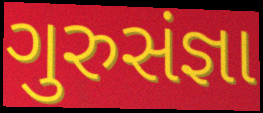
ગુરુસંજ્ઞા